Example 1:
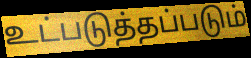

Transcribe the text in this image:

உட்படுத்தப்படும்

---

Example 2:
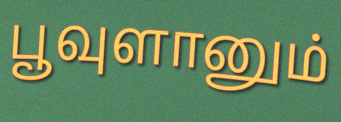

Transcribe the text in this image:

பூவுளானும்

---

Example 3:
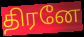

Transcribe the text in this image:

திரனே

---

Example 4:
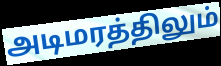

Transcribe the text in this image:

அடிமரத்திலும்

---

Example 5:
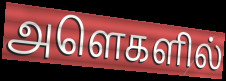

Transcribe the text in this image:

அளெகளில்